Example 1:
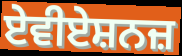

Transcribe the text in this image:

ਏਵੀਏਸ਼ਨਜ਼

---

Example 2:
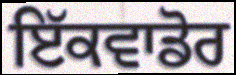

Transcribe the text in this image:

ਇੱਕਵਾਡੋਰ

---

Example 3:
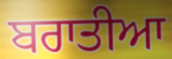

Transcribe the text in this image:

ਬਰਾਤੀਆ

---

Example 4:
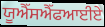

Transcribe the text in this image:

ਯੂਐੱਸਐੱਫਆਈਏ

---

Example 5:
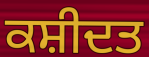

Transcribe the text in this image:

ਕਸ਼ੀਦਤ